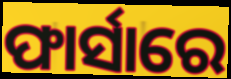
ଫାର୍ସାରେ